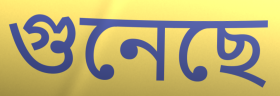
গুনেছে